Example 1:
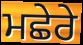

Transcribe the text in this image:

ਮਛੇਰੇ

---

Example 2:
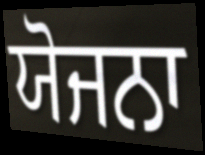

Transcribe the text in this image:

ਯੋਜਨਾ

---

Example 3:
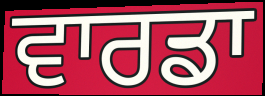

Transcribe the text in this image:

ਵਾਰਡਾ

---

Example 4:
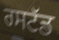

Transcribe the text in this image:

ਰਸਟੱਡ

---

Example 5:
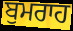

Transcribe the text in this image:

ਬੁਮਰਾਹ